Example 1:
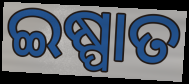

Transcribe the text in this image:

ଇଷ୍ପାତ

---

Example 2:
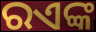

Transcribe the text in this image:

ରଏଙ୍କ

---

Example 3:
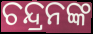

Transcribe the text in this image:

ଚନ୍ଦ୍ରନଙ୍କ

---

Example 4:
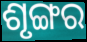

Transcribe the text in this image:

ଶୃଙ୍ଗର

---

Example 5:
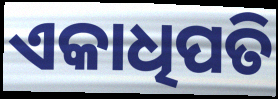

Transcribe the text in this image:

ଏକାଧିପତି